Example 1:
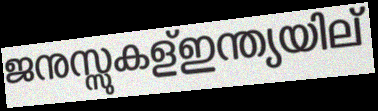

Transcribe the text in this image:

ജനുസ്സുകള്ഇന്ത്യയില്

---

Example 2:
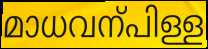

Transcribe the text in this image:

മാധവന്പിള്ള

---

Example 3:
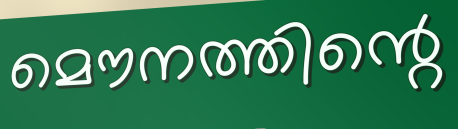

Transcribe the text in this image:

മൌനത്തിന്റെ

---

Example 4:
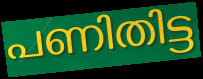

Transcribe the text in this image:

പണിതിട്ട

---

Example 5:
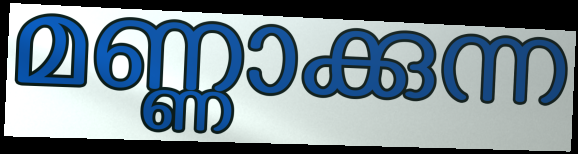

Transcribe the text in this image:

മണ്ണാക്കുന്ന